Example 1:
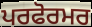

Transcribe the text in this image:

ਪਰਫੋਰਮਰ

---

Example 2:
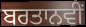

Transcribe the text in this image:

ਬਰਤਾਨਵੀਂ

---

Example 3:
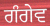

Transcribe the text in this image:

ਗੰਗੇਵ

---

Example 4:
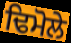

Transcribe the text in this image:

ਢਿਮੋਲੇ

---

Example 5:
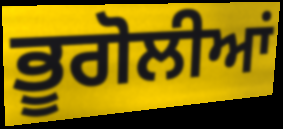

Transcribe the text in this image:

ਭੂਗੋਲੀਆਂ